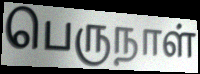
பெருநாள்